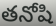
తనోషి